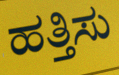
ಹತ್ತಿಸು